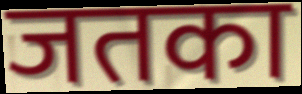
जतका